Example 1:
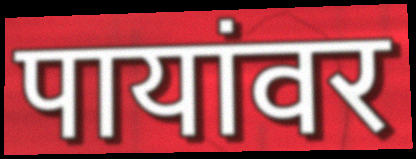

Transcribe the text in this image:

पायांवर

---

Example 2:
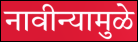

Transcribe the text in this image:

नावीन्यामुळे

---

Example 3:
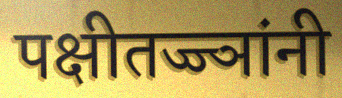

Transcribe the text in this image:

पक्षीतज्ज्ञांनी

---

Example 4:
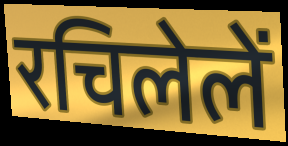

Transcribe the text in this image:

रचिलेलें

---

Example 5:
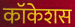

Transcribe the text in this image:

कॉकेशस